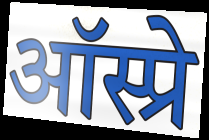
ऑस्प्रे